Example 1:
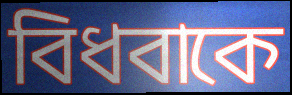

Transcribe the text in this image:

বিধবাকে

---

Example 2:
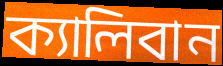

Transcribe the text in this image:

ক্যালিবান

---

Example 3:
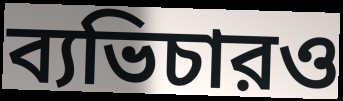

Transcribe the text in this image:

ব্যভিচারও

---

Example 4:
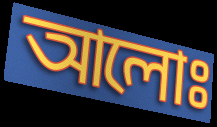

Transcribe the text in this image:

আলোঃ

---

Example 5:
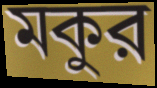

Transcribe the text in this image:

মকুর